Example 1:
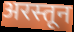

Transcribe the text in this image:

अरस्तून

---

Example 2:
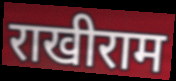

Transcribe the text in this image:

राखीराम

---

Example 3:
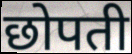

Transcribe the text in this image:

छोपती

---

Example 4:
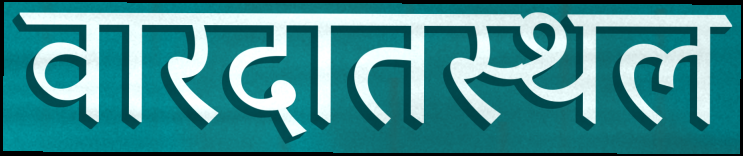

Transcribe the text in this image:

वारदातस्थल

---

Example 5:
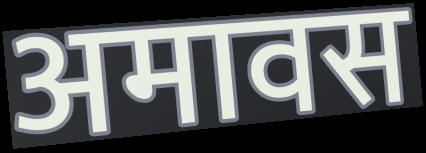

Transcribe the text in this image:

अमावस